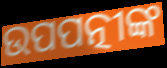
ଉପପତ୍ନୀଙ୍କ